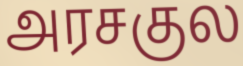
அரசகுல